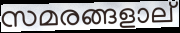
സമരങ്ങളാല്